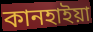
কানহাইয়া